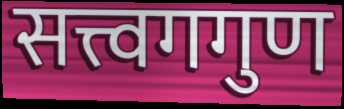
सत्त्वगगुण